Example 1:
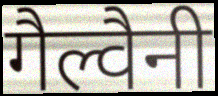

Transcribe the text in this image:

गैल्वैनी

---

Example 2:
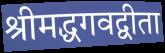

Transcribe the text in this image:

श्रीमद्धगवद्वीता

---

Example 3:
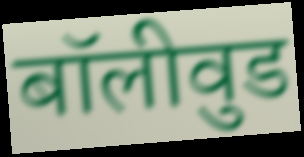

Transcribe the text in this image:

बॉलीवुड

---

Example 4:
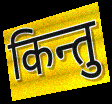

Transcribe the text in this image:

किन्तु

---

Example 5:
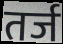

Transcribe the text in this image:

तर्ज